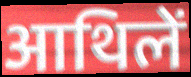
आथिलें